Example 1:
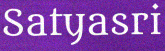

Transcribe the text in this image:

Satyasri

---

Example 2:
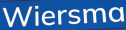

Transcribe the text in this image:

Wiersma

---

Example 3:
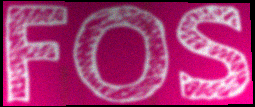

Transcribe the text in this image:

FOS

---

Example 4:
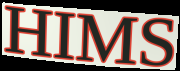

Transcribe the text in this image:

HIMS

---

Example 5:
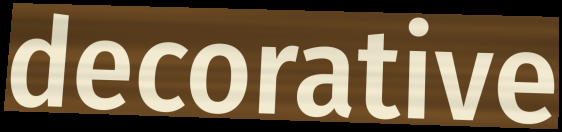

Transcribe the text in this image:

decorative